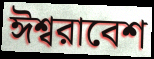
ঈশ্বরাবেশ